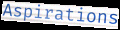
Aspirations